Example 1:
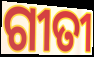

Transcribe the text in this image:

ଗୀତୀ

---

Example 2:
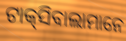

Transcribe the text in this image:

ଟାକ୍‌ସିବାଲାମାନେ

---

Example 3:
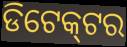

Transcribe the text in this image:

ଡିଟେକ୍‌ଟର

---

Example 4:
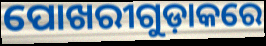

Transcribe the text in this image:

ପୋଖରୀଗୁଡ଼ାକରେ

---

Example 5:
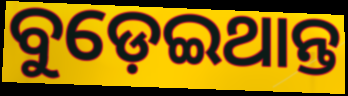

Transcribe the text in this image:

ବୁଡ଼େଇଥାନ୍ତ